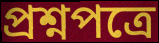
প্রশ্নপত্রে